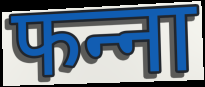
फन्ना